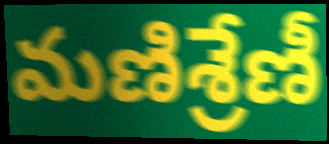
మణిశ్రేణీ